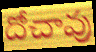
దోచావు